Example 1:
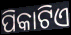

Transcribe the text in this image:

ପିକାଟିଏ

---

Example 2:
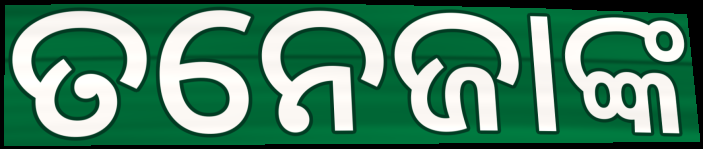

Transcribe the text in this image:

ତନେଜାଙ୍କ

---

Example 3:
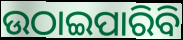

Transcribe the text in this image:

ଉଠାଇପାରିବି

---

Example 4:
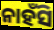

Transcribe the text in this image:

ନାହଁସି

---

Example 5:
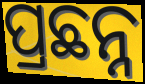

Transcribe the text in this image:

ପ୍ରଛନ୍ନ